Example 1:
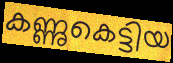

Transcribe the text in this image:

കണ്ണുകെട്ടിയ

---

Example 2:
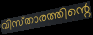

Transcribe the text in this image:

വിസ്‌താരത്തിന്റെ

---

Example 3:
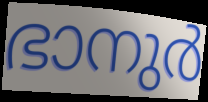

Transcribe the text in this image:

ഭാനുർ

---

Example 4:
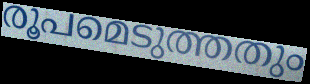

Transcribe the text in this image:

രൂപമെടുത്തതും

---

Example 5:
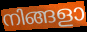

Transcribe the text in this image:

നിങ്ങളാ